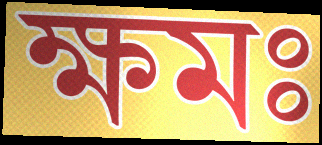
ক্ষমঃ